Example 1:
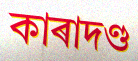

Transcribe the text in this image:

কাৰাদণ্ড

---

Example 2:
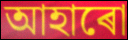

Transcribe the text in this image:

আহাৰো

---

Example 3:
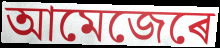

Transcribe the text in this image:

আমেজেৰে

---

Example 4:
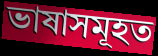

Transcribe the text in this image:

ভাষাসমূহত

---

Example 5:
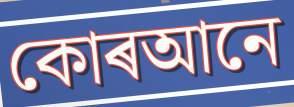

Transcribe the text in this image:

কোৰআনে